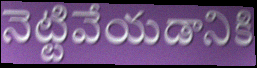
నెట్టివేయడానికి